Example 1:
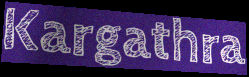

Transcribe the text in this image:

Kargathra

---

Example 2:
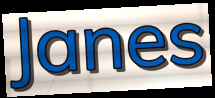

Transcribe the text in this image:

Janes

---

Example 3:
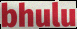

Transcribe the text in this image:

bhulu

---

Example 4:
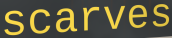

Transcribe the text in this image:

scarves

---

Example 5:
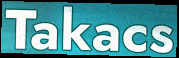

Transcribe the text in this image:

Takacs